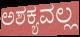
ಅಶಕ್ಯವಲ್ಲ